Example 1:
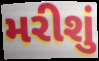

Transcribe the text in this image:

મરીશું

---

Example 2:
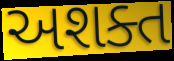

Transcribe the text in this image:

અશક્ત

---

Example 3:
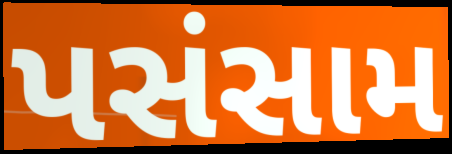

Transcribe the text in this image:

પસંસામ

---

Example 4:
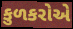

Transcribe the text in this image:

કુળકરોએ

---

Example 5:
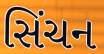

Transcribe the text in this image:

સિંચન